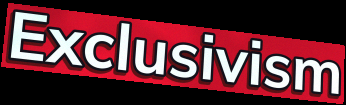
Exclusivism